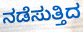
ನಡೆಸುತ್ತಿದ